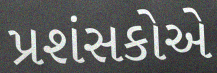
પ્રશંસકોએ